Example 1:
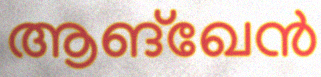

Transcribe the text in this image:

ആങ്ഖേൻ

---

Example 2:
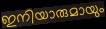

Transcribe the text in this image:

ഇനിയാരുമായും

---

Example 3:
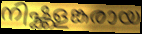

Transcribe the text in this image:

നിഷ്ക്കളങ്കരായ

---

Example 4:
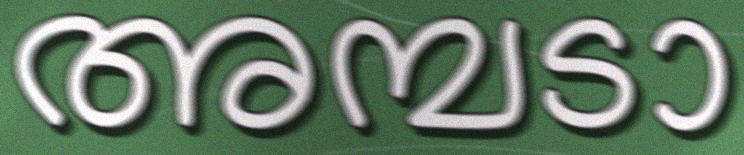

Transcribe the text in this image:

അമ്പടാ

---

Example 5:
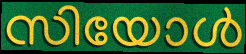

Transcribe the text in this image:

സിയോൾ